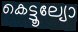
കെട്ടൂല്യോ